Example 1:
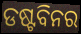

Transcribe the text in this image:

ଡଷ୍ଟବିନର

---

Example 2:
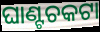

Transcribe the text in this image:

ଘାଣ୍ଟଚକଟା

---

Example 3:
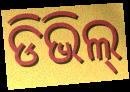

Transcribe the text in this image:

ଡିଭିଲ୍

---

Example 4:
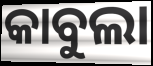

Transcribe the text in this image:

କାବୁଲା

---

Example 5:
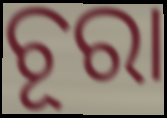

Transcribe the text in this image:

ଚୂରା